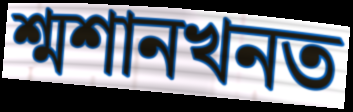
শ্মশানখনত